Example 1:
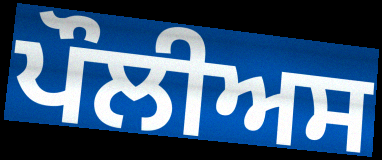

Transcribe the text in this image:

ਪੌਲੀਅਸ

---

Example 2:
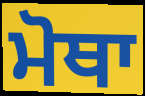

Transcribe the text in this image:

ਮੋਥਾ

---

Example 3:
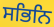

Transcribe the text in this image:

ਸਭਿਨਿ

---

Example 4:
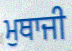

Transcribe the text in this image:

ਮੁਥਾਜੀ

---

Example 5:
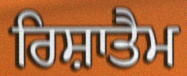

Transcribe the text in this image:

ਰਿਸ਼ਾਤੈਮ